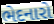
ભેદનારો